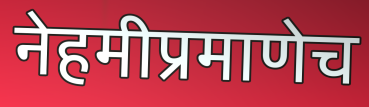
नेहमीप्रमाणेच